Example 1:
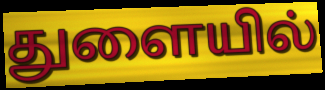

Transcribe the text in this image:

துளையில்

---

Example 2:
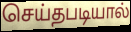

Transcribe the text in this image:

செய்தபடியால்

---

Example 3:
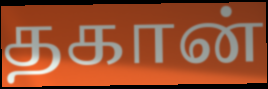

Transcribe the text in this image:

தகான்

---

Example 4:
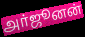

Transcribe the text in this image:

அர்ஜூனன்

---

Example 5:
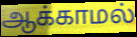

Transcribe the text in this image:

ஆக்காமல்